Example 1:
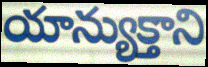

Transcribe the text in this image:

యాన్యుక్తాని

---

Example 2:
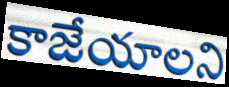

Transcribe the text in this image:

కాజేయాలని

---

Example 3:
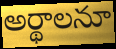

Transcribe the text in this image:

అర్థాలనూ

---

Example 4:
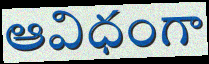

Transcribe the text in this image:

ఆవిధంగా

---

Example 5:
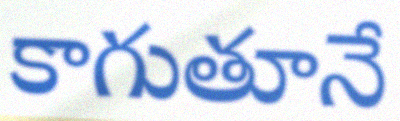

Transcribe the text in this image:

కాగుతూనే